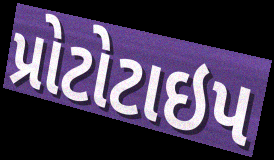
પ્રોટોટાઇપ